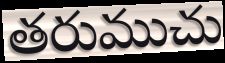
తరుముచు